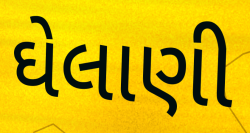
ઘેલાણી